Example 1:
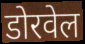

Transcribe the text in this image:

डोरवेल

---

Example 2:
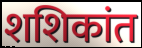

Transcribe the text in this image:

शशिकांत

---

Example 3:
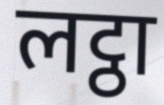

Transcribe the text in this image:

लट्ठा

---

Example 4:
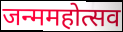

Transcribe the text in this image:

जन्ममहोत्सव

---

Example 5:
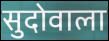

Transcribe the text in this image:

सुदोवाला